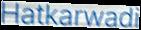
Hatkarwadi